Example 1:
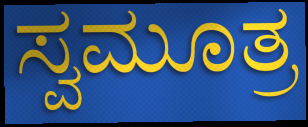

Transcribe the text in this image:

ಸ್ವಮೂತ್ರ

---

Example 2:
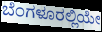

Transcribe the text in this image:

ಬೆಂಗಳೂರಲ್ಲಿಯೇ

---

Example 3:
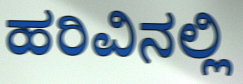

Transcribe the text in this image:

ಹರಿವಿನಲ್ಲಿ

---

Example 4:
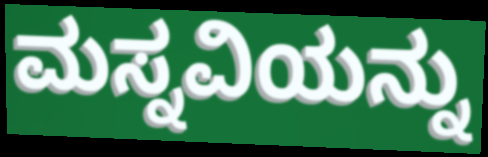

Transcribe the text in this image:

ಮಸ್ನವಿಯನ್ನು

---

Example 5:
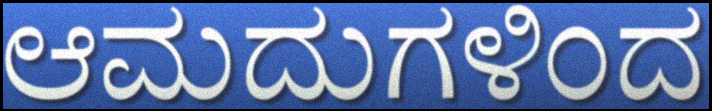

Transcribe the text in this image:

ಆಮದುಗಳಿಂದ